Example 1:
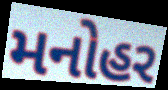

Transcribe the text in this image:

મનોહર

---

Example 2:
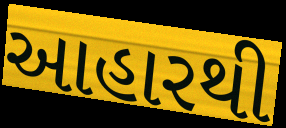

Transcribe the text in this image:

આહારથી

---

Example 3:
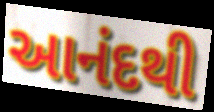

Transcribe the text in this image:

આનંદથી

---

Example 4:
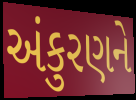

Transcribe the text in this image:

અંકુરણને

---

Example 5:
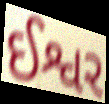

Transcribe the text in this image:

ઈશ્વર